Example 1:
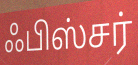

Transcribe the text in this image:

ஃபிஸ்சர்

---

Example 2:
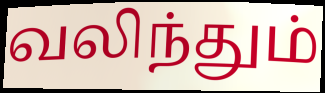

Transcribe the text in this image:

வலிந்தும்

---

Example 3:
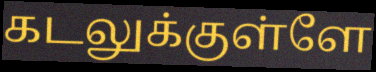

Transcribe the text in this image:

கடலுக்குள்ளே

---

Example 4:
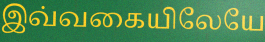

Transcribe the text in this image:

இவ்வகையிலேயே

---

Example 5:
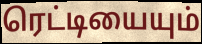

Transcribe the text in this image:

ரெட்டியையும்